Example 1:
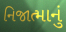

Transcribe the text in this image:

નિજાત્માનું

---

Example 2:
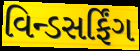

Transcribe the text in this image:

વિન્ડસર્ફિંગ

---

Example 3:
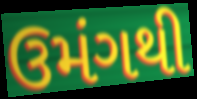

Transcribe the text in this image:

ઉમંગથી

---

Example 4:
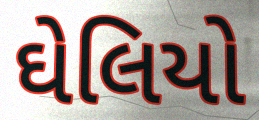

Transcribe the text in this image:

ઘેલિયો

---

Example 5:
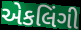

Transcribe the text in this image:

એકલિંગી